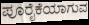
ಪೂರೈಕೆಯಾಗುವ